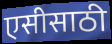
एसीसाठी